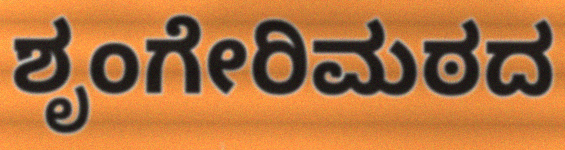
ಶೃಂಗೇರಿಮಠದ